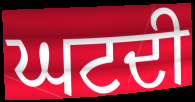
ਘਟਦੀ